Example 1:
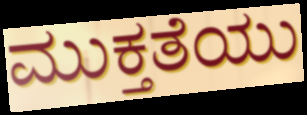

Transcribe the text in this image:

ಮುಕ್ತತೆಯು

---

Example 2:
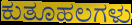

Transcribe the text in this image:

ಕುತೂಹಲಗಳು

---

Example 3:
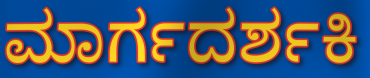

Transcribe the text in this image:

ಮಾರ್ಗದರ್ಶಕಿ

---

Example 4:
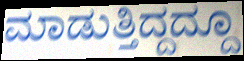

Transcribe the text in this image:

ಮಾಡುತ್ತಿದ್ದದ್ದೂ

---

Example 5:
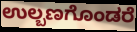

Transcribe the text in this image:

ಉಲ್ಬಣಗೊಂಡರೆ